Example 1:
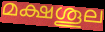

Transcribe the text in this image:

മക്ഷശൂല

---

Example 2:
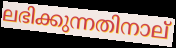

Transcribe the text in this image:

ലഭിക്കുന്നതിനാല്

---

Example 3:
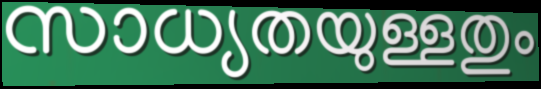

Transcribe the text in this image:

സാധ്യതയുള്ളതും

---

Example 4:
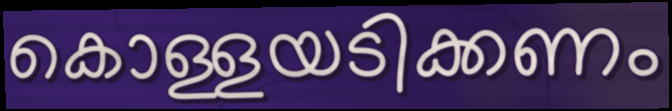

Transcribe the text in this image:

കൊള്ളയടിക്കണം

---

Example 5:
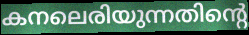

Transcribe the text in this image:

കനലെരിയുന്നതിന്റെ